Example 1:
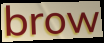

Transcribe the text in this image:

brow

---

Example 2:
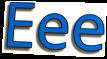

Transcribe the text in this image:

Eee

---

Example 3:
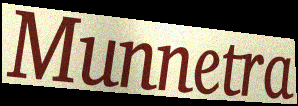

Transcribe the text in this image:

Munnetra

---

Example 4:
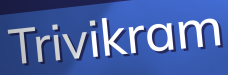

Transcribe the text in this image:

Trivikram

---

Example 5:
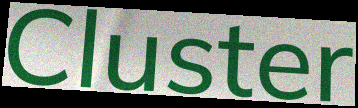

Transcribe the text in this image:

Cluster